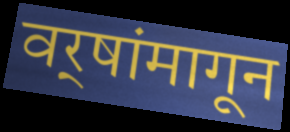
वर्षांमागून